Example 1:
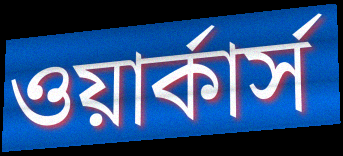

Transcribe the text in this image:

ওয়ার্কার্স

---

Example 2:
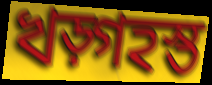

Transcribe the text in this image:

খড়্গহস্ত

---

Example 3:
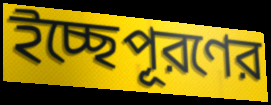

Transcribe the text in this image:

ইচ্ছেপূরণের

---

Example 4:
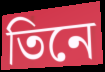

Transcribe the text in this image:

তিনে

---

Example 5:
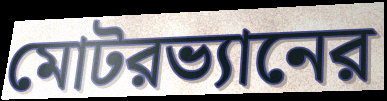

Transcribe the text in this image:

মোটরভ্যানের